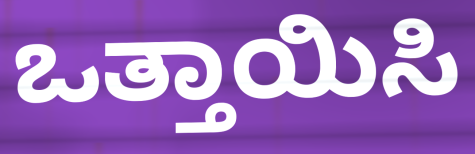
ಒತ್ತಾಯಿಸಿ